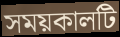
সময়কালটি